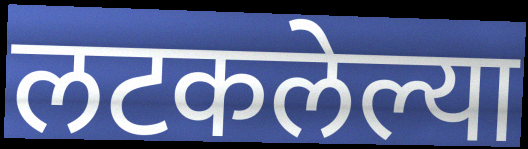
लटकलेल्या